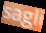
sagli